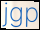
jgp